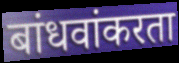
बांधवांकरता